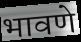
भावणे